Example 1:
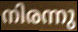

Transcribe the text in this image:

നിരന്നു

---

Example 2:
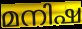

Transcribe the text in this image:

മനിഷ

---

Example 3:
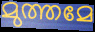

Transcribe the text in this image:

മുത്തമേ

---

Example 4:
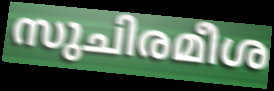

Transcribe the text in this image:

സുചിരമീശ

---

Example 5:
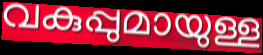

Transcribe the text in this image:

വകുപ്പുമായുള്ള